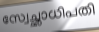
സ്വേച്ഛാധിപതി